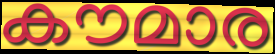
കൗമാര